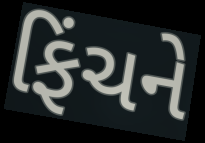
ફિંચને